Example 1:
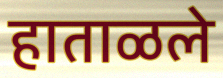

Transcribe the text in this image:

हाताळले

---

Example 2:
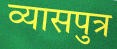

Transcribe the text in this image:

व्यासपुत्र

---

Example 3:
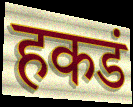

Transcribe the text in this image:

हकडं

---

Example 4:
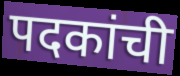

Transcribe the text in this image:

पदकांची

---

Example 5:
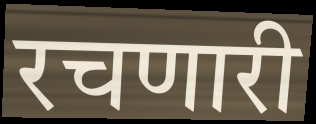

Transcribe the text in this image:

रचणारी